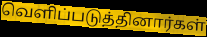
வெளிப்படுத்தினார்கள்